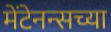
मेंटेनन्सच्या